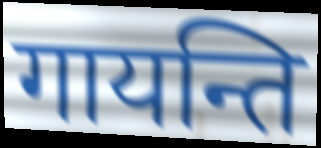
गायन्ति